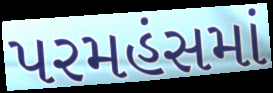
પરમહંસમાં